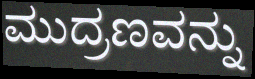
ಮುದ್ರಣವನ್ನು